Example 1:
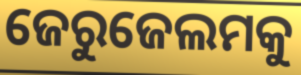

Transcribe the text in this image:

ଜେରୁଜେଲମକୁ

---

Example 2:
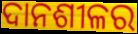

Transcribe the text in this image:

ଦାନଶୀଳର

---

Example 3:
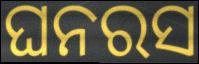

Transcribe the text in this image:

ଘନରସ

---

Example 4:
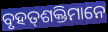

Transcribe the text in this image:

ବୃହତ୍‌ଶକ୍ତିମାନେ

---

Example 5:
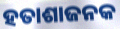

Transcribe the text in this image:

ହତାଶାଜନକ